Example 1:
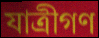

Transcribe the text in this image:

যাত্রীগণ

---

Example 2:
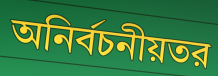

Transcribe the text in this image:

অনির্বচনীয়তর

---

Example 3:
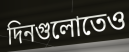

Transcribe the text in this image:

দিনগুলোতেও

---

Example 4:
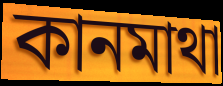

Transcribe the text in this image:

কানমাথা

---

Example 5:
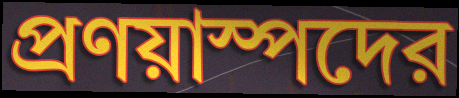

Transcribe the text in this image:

প্রণয়াস্পদের